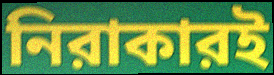
নিরাকারই